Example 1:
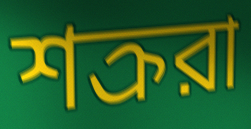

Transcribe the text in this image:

শক্ররা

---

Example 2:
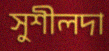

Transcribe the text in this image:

সুশীলদা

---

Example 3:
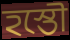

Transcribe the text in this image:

হস্তৌ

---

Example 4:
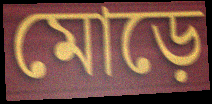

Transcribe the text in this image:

মোড়ে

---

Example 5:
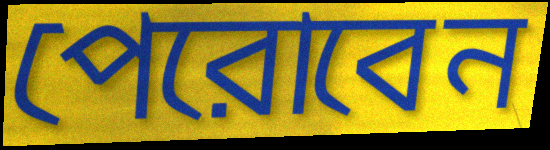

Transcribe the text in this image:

পেরোবেন